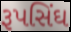
રૂપસિંઘ